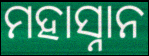
ମହାସ୍ନାନ